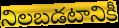
నిలబడటానికీ